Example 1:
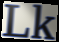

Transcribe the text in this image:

Lk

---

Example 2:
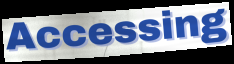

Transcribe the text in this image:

Accessing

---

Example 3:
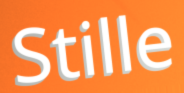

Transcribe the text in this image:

Stille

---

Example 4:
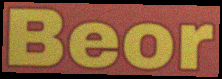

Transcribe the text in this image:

Beor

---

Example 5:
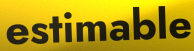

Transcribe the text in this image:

estimable